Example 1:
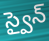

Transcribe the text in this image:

స్వైన్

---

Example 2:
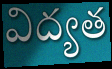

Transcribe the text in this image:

విద్యత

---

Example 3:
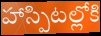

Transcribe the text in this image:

హాస్పిటల్లోకి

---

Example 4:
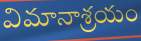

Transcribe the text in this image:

విమానాశ్రయం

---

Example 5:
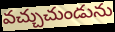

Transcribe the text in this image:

వచ్చుచుండును